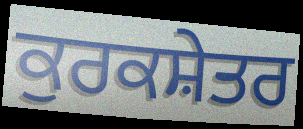
ਕੁਰਕਸ਼ੇਤਰ